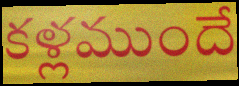
కళ్లముందే